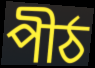
পীঠ